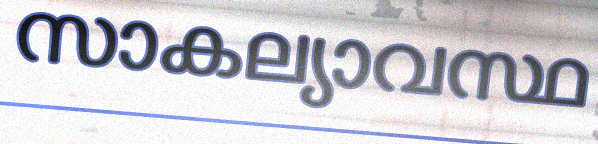
സാകല്യാവസ്ഥ